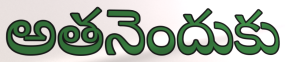
అతనెందుకు